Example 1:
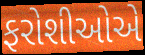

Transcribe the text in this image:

ફરોશીઓએ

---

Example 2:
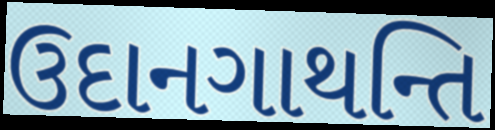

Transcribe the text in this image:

ઉદાનગાથન્તિ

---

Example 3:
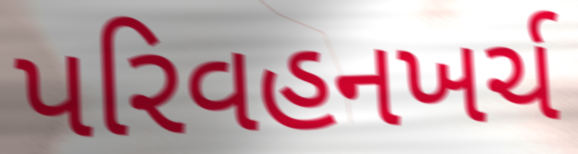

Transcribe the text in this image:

પરિવહનખર્ચ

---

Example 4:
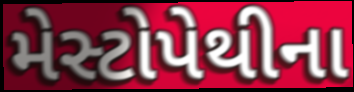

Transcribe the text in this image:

મેસ્ટોપેથીના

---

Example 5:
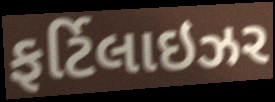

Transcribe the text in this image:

ફર્ટિલાઇઝર